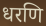
धरणि